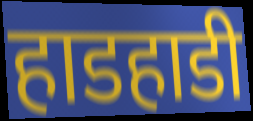
हाडहाडी